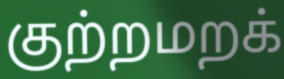
குற்றமறக்